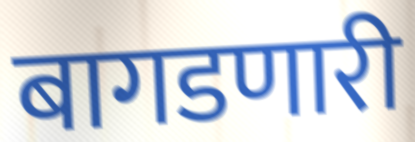
बागडणारी